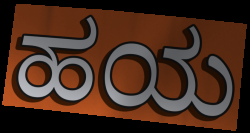
ಹಯ